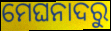
ମେଘନାଦରୁ